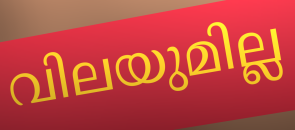
വിലയുമില്ല